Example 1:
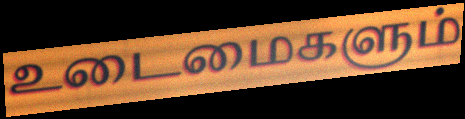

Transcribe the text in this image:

உடைமைகளும்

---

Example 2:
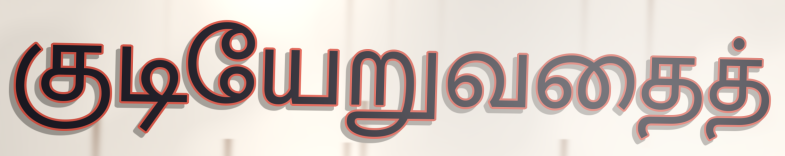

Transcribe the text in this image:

குடியேறுவதைத்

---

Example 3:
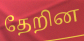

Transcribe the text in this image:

தேறின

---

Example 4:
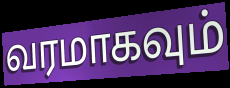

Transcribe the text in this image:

வரமாகவும்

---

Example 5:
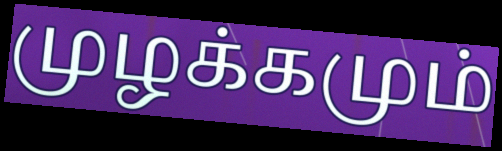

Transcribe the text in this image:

முழக்கமும்